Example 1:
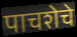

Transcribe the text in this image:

पाचशेचे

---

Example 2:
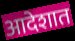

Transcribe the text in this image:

आदेशात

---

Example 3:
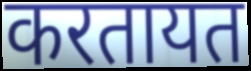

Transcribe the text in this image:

करतायत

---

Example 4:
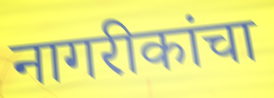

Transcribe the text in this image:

नागरीकांचा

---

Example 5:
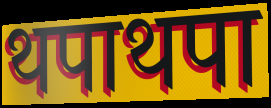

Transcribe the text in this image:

थपाथपा